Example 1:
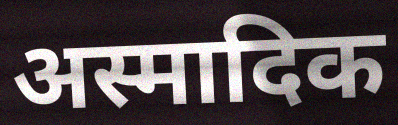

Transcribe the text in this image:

अस्मादिक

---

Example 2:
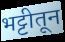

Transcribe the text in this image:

भट्टीतून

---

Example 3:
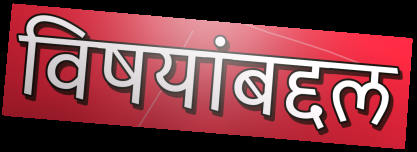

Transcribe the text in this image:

विषयांबद्दल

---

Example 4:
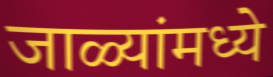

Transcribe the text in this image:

जाळ्यांमध्ये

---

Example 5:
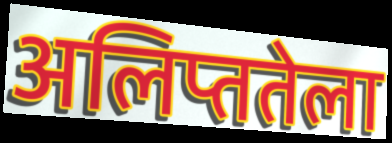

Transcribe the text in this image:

अलिप्ततेला